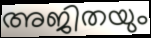
അജിതയും